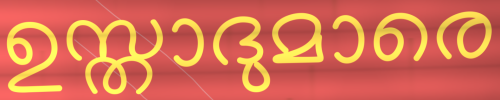
ഉസ്താദുമാരെ